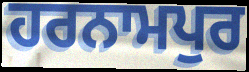
ਹਰਨਾਮਪੁਰ